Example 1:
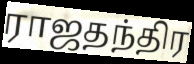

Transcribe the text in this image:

ராஜதந்திர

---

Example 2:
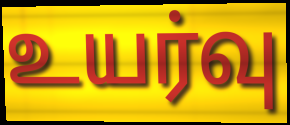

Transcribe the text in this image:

உயர்வு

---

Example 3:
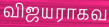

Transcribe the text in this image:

விஜயராகவ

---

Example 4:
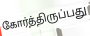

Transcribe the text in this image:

கோர்த்திருப்பது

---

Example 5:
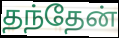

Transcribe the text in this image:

தந்தேன்